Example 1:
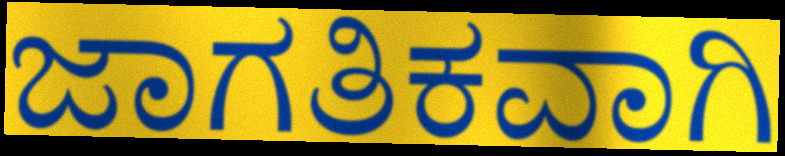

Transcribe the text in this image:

ಜಾಗತಿಕವಾಗಿ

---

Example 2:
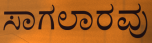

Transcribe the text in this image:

ಸಾಗಲಾರವು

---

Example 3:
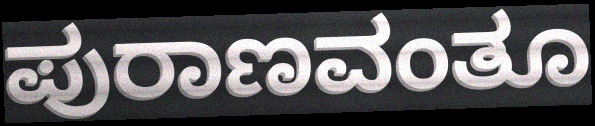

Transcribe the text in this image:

ಪುರಾಣವಂತೂ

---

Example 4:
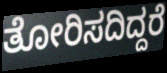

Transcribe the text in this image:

ತೋರಿಸದಿದ್ದರೆ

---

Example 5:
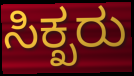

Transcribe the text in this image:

ಸಿಕ್ಖರು